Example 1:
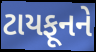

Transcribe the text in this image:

ટાયફૂનને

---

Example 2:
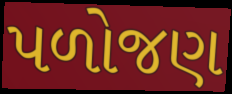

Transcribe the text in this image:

પળોજણ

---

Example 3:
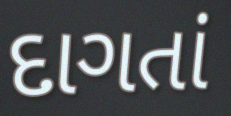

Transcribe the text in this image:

દાગતાં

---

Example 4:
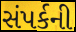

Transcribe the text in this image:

સંપર્કની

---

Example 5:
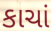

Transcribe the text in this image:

કાચાં